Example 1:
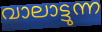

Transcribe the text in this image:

വാലാട്ടുന്ന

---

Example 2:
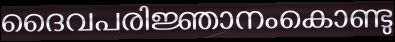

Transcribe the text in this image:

ദൈവപരിജ്ഞാനംകൊണ്ടു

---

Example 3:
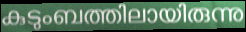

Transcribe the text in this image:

കുടുംബത്തിലായിരുന്നു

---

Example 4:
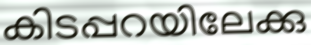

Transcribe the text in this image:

കിടപ്പറയിലേക്കു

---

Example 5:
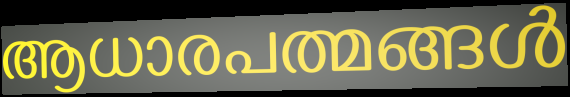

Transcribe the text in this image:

ആധാരപത്മങ്ങൾ